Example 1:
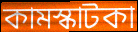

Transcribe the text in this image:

কামস্কাটকা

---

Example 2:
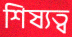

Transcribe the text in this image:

শিষ্যত্ব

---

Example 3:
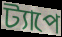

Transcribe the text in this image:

ট্যাপে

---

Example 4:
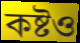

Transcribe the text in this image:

কষ্টও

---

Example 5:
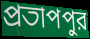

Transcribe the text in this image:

প্রতাপপুর